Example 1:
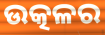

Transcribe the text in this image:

ଉତ୍କଳର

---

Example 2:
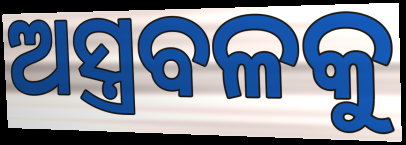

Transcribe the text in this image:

ଅସ୍ତ୍ରବଳକୁ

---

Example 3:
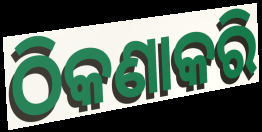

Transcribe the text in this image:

ଠିକଣାକରି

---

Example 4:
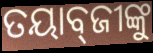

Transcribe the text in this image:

ତୟାବ୍‌ଜୀଙ୍କୁ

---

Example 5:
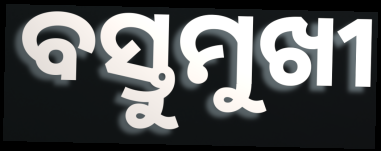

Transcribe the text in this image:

ବସ୍ତୁମୁଖୀ